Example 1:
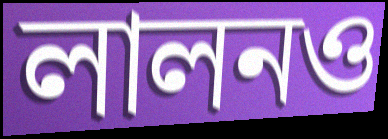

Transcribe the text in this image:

লালনও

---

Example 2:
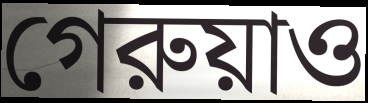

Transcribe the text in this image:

গেরুয়াও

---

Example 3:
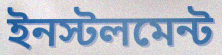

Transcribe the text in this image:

ইনস্টলমেন্ট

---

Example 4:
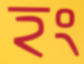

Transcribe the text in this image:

হং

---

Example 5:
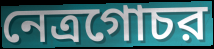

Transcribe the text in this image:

নেত্রগোচর